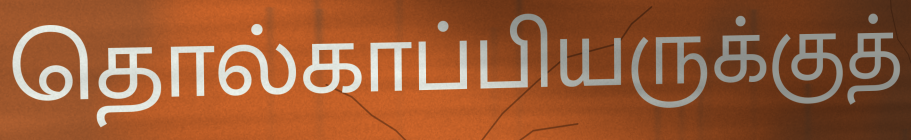
தொல்காப்பியருக்குத்